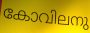
കോവിലനു